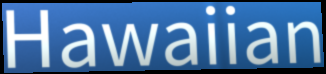
Hawaiian